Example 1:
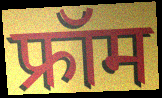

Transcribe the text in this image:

फ्रॉम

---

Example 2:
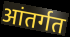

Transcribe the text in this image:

आंतर्गत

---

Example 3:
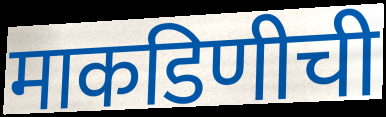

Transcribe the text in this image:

माकडिणीची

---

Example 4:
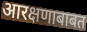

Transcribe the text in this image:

आरक्षणाबाबत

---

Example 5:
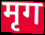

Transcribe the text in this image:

मृग